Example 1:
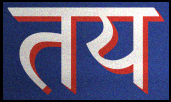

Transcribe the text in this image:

तय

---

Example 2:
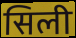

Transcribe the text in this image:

सिली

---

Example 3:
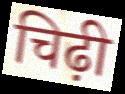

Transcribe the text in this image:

चिढ़ी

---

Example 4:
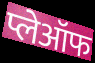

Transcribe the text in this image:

प्लेऑफ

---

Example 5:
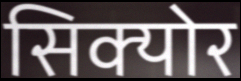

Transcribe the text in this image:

सिक्योर